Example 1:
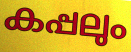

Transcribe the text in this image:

കപ്പലും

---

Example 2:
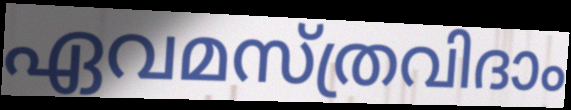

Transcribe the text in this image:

ഏവമസ്ത്രവിദാം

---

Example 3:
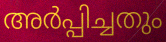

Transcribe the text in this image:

അർപ്പിച്ചതും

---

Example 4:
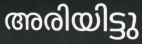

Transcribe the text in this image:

അരിയിട്ടു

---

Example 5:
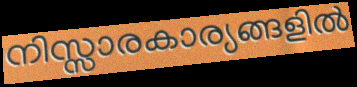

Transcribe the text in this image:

നിസ്സാരകാര്യങ്ങളിൽ